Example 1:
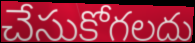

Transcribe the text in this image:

చేసుకోగలదు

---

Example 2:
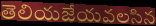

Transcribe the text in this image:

తెలియజేయవలసిన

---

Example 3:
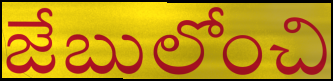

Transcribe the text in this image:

జేబులోంచి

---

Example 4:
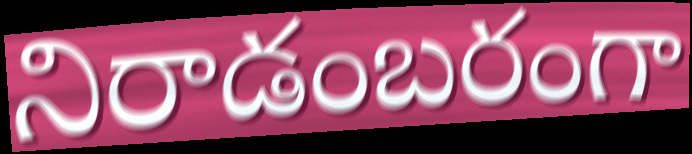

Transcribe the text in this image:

నిరాడంబరంగా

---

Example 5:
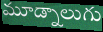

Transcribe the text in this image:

మూడ్నాలుగు